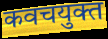
कवचयुक्त